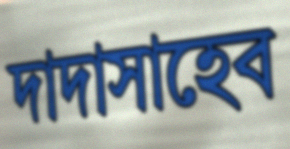
দাদাসাহেব